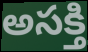
అసక్తి